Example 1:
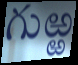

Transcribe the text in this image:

గుఱ్ఱ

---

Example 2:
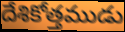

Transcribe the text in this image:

దేశికోత్తముడు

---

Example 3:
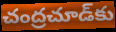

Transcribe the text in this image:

చంద్రచూడ్‌కు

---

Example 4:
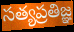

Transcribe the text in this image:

సత్యప్రతిజ్ఞ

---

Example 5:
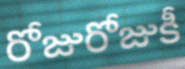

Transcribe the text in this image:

రోజురోజుకీ